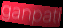
ganpati